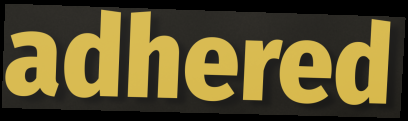
adhered